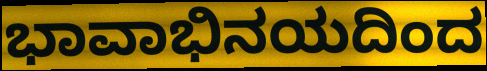
ಭಾವಾಭಿನಯದಿಂದ